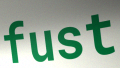
fust